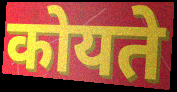
कोयते